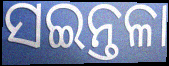
ସଇନ୍ତଳା